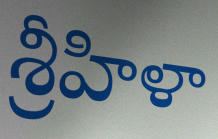
శ్రీహిళా